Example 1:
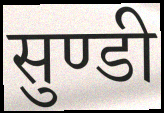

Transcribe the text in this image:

सुण्डी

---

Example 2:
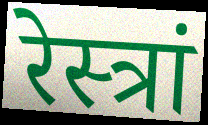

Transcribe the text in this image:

रेस्त्रां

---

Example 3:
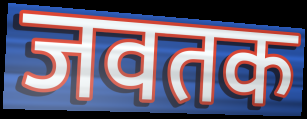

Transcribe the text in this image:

जवतक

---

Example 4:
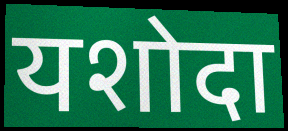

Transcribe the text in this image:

यशोदा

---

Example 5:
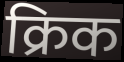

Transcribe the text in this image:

क्रिक